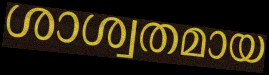
ശാശ്വതമായ